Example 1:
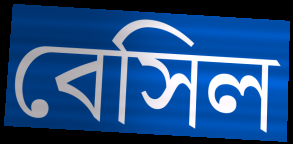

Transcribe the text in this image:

বেসিল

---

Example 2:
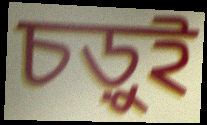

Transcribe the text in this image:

চড়ুই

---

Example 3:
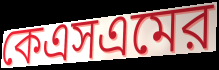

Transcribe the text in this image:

কেএসএমের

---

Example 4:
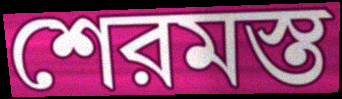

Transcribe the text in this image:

শেরমস্ত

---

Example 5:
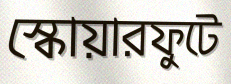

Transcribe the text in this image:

স্কোয়ারফুটে